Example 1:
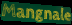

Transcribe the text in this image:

Mangnale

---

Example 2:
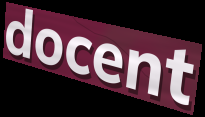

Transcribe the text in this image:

docent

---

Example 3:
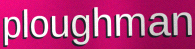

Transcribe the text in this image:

ploughman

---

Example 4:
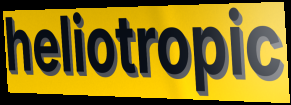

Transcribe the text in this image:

heliotropic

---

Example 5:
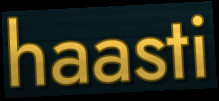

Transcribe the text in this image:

haasti